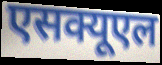
एसक्यूएल